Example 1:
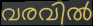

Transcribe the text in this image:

വരവിൽ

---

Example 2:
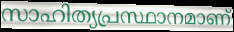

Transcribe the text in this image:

സാഹിത്യപ്രസ്ഥാനമാണ്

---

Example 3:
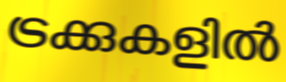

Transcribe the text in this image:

ട്രക്കുകളിൽ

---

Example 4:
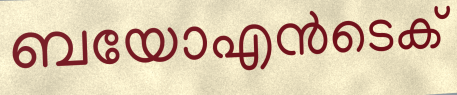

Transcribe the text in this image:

ബയോഎൻടെക്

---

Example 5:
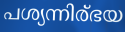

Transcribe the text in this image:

പശ്യന്നിര്ഭയ